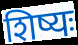
शिष्यः